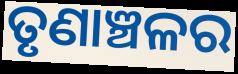
ତୃଣାଞ୍ଚଳର